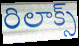
రిలాక్స్